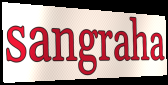
sangraha